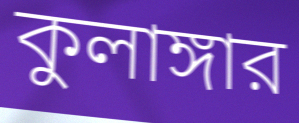
কুলাঙ্গার